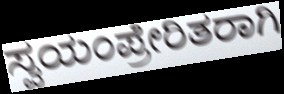
ಸ್ವಯಂಪ್ರೇರಿತರಾಗಿ